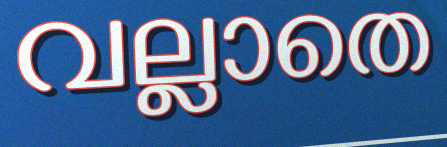
വല്ലാതെ